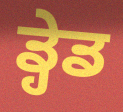
ਡ੍ਹੇਡ